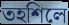
তহশিলে